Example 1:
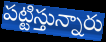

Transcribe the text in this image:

పట్టిస్తున్నారు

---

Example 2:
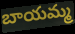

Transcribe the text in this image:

బాయమ్మ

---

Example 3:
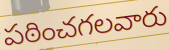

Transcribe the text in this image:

పఠించగలవారు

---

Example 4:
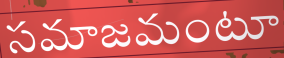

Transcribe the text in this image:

సమాజమంటూ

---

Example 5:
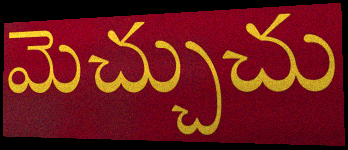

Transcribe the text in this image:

మెచ్చుచు